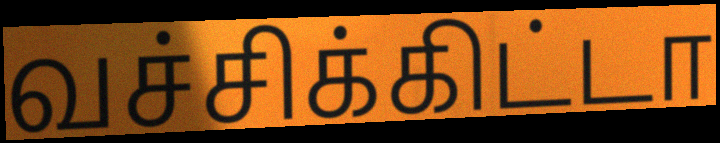
வச்சிக்கிட்டா